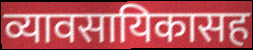
व्यावसायिकासह